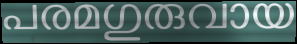
പരമഗുരുവായ